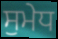
ਸੁਮੇਧ